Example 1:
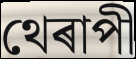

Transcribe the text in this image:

থেৰাপী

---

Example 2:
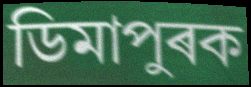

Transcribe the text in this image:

ডিমাপুৰক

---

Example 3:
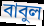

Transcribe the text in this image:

বাবুল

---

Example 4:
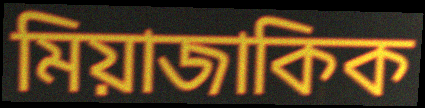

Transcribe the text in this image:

মিয়াজাকিক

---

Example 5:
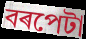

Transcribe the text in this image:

বৰপেটা